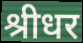
श्रीधर